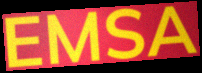
EMSA